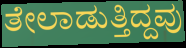
ತೇಲಾಡುತ್ತಿದ್ದವು